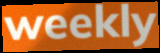
weekly